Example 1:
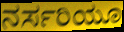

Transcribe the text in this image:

ನರ್ಸರಿಯೂ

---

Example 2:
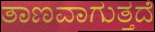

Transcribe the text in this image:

ತಾಣವಾಗುತ್ತದೆ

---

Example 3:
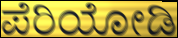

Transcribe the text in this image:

ಪೆರಿಯೋಡಿ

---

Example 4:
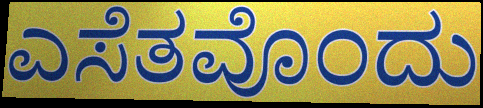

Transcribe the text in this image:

ಎಸೆತವೊಂದು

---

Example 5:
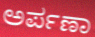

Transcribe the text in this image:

ಅರ್ಪಣಾ